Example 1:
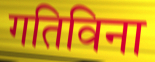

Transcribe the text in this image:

गतिविना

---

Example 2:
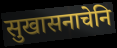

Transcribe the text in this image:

सुखासनाचेनि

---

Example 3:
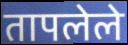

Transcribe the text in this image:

तापलेले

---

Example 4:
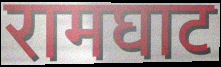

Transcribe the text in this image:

रामघाट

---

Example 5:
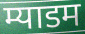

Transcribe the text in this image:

म्याडम